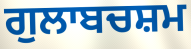
ਗੁਲਾਬਚਸ਼ਮ